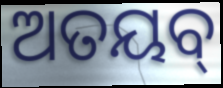
ଅତୟବ୍